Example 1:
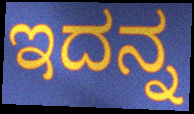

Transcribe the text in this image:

ಇದನ್ನ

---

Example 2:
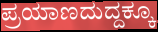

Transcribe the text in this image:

ಪ್ರಯಾಣದುದ್ದಕ್ಕೂ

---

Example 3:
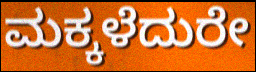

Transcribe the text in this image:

ಮಕ್ಕಳೆದುರೇ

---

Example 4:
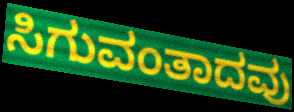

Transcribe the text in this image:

ಸಿಗುವಂತಾದವು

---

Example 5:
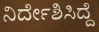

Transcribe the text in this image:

ನಿರ್ದೇಶಿಸಿದ್ದೆ